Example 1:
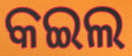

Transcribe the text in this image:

କଇଲ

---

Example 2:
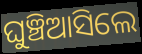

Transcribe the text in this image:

ଘୁଞ୍ଚିଆସିଲେ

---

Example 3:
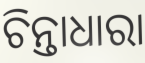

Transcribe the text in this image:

ଚିନ୍ତାଧାରା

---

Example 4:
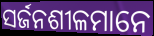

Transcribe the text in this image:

ସର୍ଜନଶୀଳମାନେ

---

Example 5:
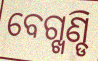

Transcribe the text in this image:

ବେଗ୍ଖଣ୍ଡି